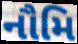
નૌમિ